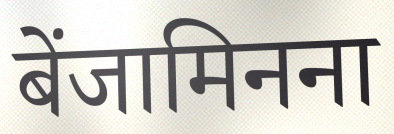
बेंजामिनना